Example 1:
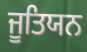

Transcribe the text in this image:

ਜੂਤਿਯਨ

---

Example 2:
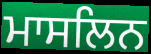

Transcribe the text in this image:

ਮਾਸਲਿਨ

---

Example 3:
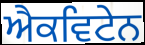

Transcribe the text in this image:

ਐਕਵਿਟੇਨ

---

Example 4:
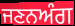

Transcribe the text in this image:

ਜਣਨਅੰਗ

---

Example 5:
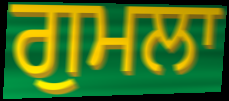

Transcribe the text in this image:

ਗੁਮਲਾ